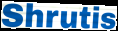
Shrutis